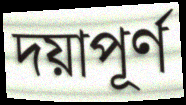
দয়াপূর্ণ